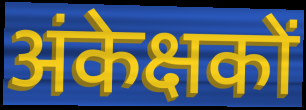
अंकेक्षकों